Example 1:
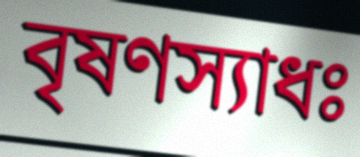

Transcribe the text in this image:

বৃষণস্যাধঃ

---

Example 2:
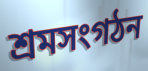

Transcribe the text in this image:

শ্রমসংগঠন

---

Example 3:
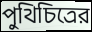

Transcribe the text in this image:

পুথিচিত্রের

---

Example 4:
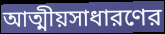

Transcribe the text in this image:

আত্মীয়সাধারণের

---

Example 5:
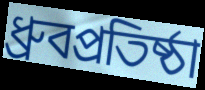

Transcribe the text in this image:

ধ্রুবপ্রতিষ্ঠা